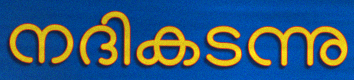
നദികടന്നു